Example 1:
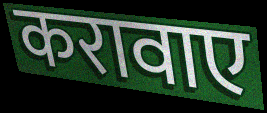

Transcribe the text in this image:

करावाए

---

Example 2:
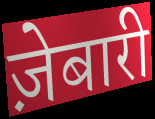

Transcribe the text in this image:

ज़ेबारी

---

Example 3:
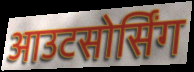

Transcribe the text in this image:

आउटसोर्सिंग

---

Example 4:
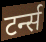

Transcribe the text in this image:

टर्न्स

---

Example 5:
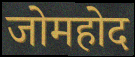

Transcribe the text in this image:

जोमहोद